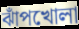
ঝাঁপখোলা